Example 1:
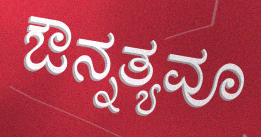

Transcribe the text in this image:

ಔನ್ನತ್ಯವೂ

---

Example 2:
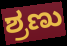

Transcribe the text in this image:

ಶ್ರಣು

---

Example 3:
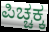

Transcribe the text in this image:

ಪಿಚ್ಚಕ್ಕ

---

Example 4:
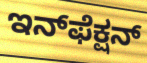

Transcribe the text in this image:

ಇನ್‌ಫೆಕ್ಷನ್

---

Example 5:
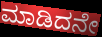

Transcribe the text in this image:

ಮಾಡಿದನೇ